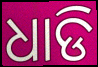
ଧାଡି